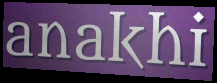
anakhi